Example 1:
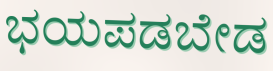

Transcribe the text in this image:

ಭಯಪಡಬೇಡ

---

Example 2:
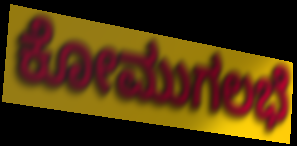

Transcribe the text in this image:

ಕೋಮುಗಲಭೆ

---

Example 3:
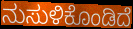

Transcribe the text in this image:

ನುಸುಳಿಕೊಂಡಿದೆ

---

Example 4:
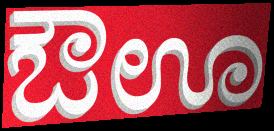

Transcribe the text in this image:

ಔಊ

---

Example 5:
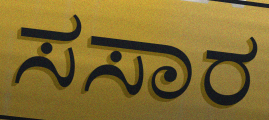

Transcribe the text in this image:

ಸಸಾರ